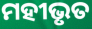
ମହୀଭୃତ